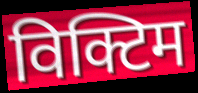
विक्टिम